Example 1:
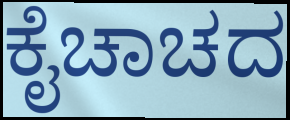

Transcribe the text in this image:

ಕೈಚಾಚದ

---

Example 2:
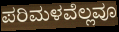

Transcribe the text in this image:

ಪರಿಮಳವೆಲ್ಲವೂ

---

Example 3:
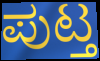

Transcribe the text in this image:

ಪುಟ್ತ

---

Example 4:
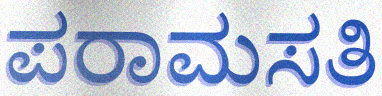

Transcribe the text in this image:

ಪರಾಮಸತಿ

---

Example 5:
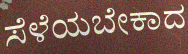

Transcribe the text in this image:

ಸೆಳೆಯಬೇಕಾದ